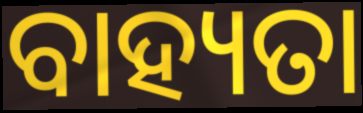
ବାହ୍ୟତା